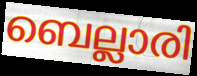
ബെല്ലാരി